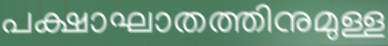
പക്ഷാഘാതത്തിനുമുള്ള